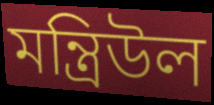
মন্ত্রিউল